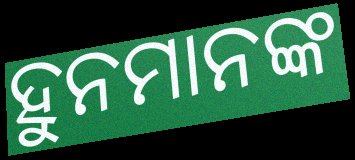
ହୁନମାନଙ୍କ